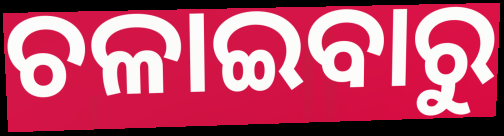
ଚଳାଇବାରୁ